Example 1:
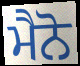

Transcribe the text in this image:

ਮੈਨੋ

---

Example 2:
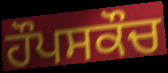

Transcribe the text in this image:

ਹੌਪਸਕੌਚ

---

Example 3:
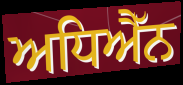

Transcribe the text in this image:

ਅਧਿਐੱਨ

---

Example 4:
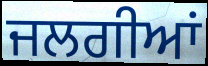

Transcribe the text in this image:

ਜਲਗੀਆਂ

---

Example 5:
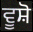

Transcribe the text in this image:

ਵੂਸ਼ੋ